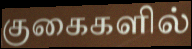
குகைகளில்